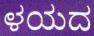
ಳಯದ